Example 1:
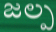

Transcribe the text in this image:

జల్ప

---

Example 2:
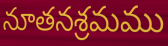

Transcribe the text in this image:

నూతనశ్రమము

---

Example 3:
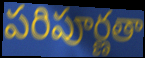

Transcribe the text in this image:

పరిపూర్ణతా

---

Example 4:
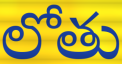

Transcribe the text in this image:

లోతు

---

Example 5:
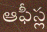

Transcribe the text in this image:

ఆఫీస్ల